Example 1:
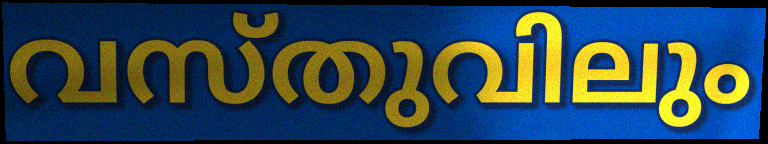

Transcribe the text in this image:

വസ്തുവിലും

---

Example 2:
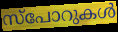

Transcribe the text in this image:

സ്പോറുകൾ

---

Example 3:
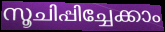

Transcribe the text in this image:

സൂചിപ്പിച്ചേക്കാം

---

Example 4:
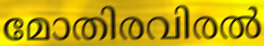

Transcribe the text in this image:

മോതിരവിരൽ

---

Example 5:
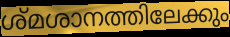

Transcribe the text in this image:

ശ്മശാനത്തിലേക്കും